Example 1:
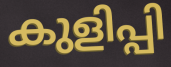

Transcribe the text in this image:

കുളിപ്പി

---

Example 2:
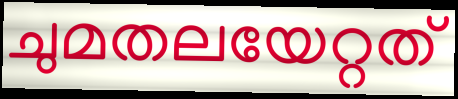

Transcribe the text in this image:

ചുമതലയേറ്റത്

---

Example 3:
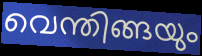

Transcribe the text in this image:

വെന്തിങ്ങയും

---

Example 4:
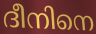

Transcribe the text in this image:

ദീനിനെ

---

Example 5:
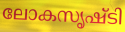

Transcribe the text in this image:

ലോകസൃഷ്ടി